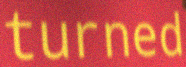
turned